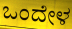
ಒಂದೇಳ